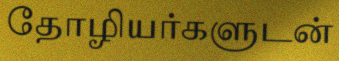
தோழியர்களுடன்